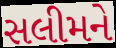
સલીમને